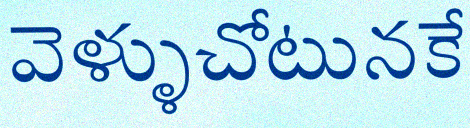
వెళ్ళుచోటునకే